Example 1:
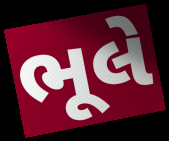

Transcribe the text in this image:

ભૂલે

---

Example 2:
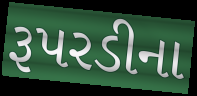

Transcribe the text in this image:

રૂપરડીના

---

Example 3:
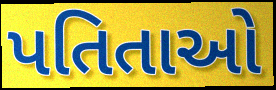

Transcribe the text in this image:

પતિતાઓ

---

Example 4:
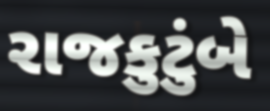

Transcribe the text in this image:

રાજકુટુંબે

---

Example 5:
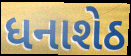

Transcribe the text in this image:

ધનાશેઠ